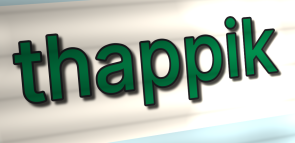
thappik